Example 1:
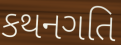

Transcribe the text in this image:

કથનગતિ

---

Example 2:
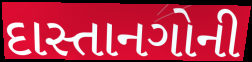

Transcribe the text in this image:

દાસ્તાનગોની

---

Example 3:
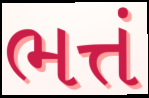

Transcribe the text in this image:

ભત્તં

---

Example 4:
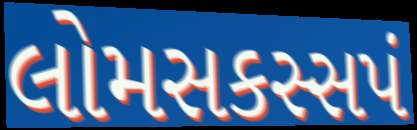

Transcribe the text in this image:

લોમસકસ્સપં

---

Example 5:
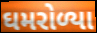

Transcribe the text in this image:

ઘમરોળ્યા